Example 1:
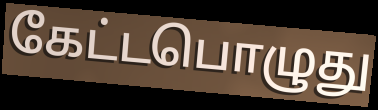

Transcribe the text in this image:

கேட்டபொழுது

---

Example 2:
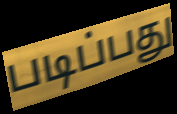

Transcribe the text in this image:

படிப்பது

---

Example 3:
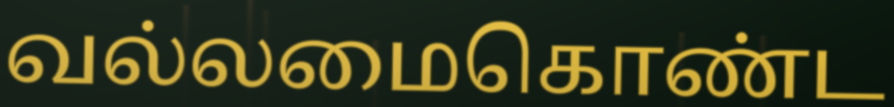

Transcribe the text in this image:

வல்லமைகொண்ட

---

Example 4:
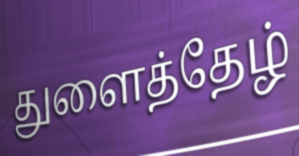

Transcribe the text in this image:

துளைத்தேழ்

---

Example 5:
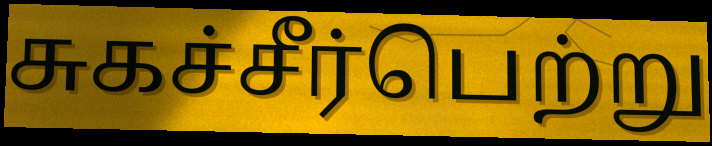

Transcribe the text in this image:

சுகச்சீர்பெற்று